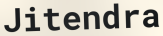
Jitendra